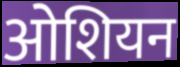
ओशियन